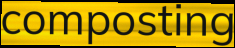
composting